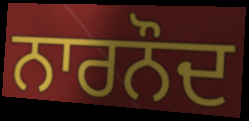
ਨਾਰਨੌਦ